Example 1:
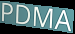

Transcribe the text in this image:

PDMA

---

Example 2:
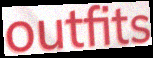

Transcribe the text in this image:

outfits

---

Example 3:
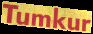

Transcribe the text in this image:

Tumkur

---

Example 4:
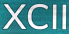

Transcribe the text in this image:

XCII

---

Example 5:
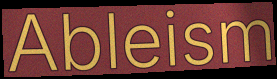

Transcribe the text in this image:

Ableism